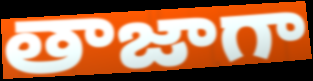
తాజాగా